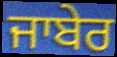
ਜਾਬੇਰ